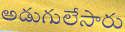
అడుగులేసారు